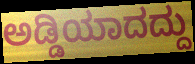
ಅಡ್ಡಿಯಾದದ್ದು